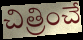
చిత్రించే